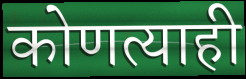
कोणत्याही